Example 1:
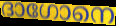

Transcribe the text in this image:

ദാഗോനെ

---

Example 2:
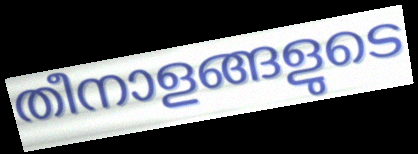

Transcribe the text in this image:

തീനാളങ്ങളുടെ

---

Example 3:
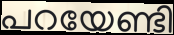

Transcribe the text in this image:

പറയേണ്ടി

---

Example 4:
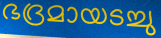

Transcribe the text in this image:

ഭദ്രമായടച്ചു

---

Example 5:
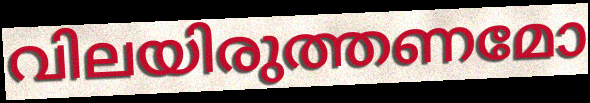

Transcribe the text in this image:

വിലയിരുത്തണമോ